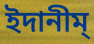
ইদানীম্